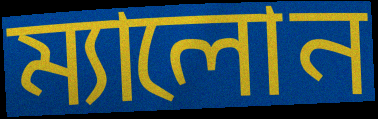
ম্যালোন